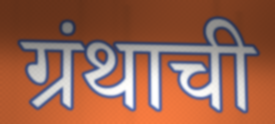
ग्रंथाची